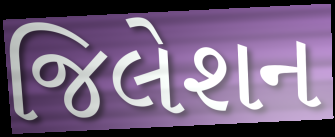
જિલેશન